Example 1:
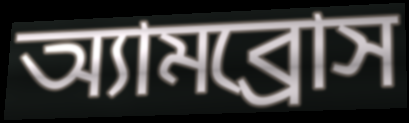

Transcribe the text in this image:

অ্যামব্রোস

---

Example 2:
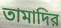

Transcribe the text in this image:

তামাদির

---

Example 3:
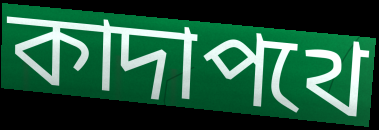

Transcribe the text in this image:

কাদাপথে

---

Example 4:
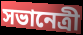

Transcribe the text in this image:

সভানেত্রী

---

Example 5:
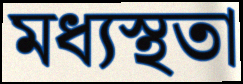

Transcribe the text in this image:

মধ্যস্থতা